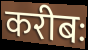
करीबः